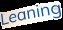
Leaning